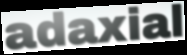
adaxial